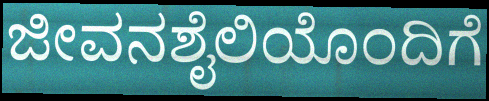
ಜೀವನಶೈಲಿಯೊಂದಿಗೆ